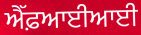
ਐੱਫ਼ਆਈਆਈ